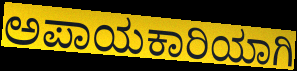
ಅಪಾಯಕಾರಿಯಾಗಿ